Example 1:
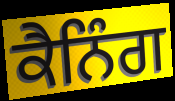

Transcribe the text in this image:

ਕੈਨਿੰਗ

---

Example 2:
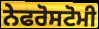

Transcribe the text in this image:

ਨੇਫਰੋਸਟੋਮੀ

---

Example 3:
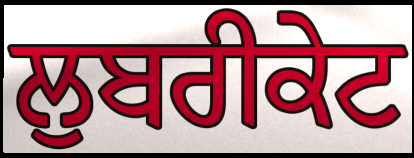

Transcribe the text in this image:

ਲੁਬਰੀਕੇਟ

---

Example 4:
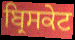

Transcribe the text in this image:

ਬ੍ਰਿਸਕੇਟ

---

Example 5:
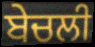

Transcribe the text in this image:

ਬੇਚਲੀ